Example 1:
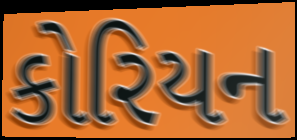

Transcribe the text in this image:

કોરિયન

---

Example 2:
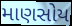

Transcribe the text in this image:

માણસોય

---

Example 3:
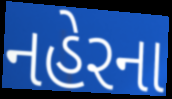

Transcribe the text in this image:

નહેરના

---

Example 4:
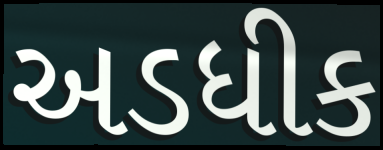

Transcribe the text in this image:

અડધીક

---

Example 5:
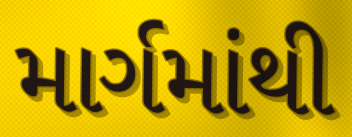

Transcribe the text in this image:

માર્ગમાંથી